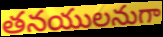
తనయులనుగా